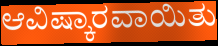
ಆವಿಷ್ಕಾರವಾಯಿತು